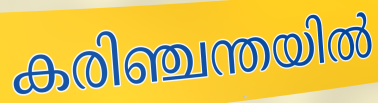
കരിഞ്ചന്തയിൽ